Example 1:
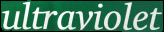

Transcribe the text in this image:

ultraviolet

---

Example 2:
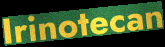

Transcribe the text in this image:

Irinotecan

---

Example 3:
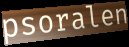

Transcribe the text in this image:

psoralen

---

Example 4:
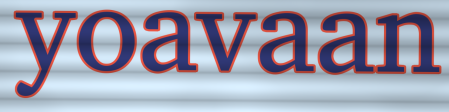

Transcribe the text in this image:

yoavaan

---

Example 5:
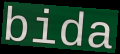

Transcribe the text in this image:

bida